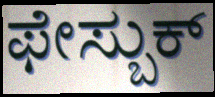
ಫೇಸ್ಬುಕ್